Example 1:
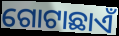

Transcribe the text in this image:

ଗୋଟାଛାଏଁ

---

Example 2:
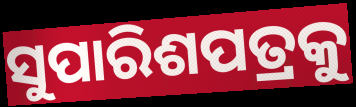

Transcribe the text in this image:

ସୁପାରିଶପତ୍ରକୁ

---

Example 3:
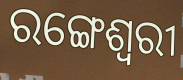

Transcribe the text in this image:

ରଙ୍ଗେଶ୍ୱରୀ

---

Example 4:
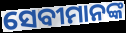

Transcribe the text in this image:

ସେବୀମାନଙ୍କ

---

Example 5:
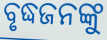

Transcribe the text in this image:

ବୃଦ୍ଧଜନଙ୍କୁ